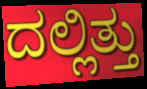
ದಲ್ಲಿತ್ತು